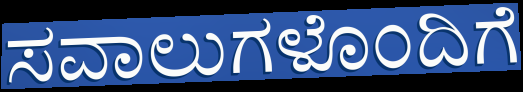
ಸವಾಲುಗಳೊಂದಿಗೆ